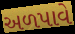
અળપાવે